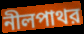
নীলপাথর